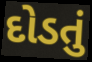
દોડતું